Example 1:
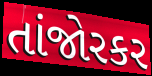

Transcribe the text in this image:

તાંજોરકર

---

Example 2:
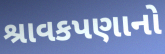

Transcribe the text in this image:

શ્રાવકપણાનો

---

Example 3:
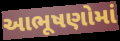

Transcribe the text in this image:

આભૂષણોમાં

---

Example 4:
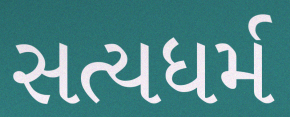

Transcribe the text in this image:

સત્યધર્મ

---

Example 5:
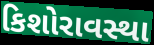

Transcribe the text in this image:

કિશોરાવસ્થા